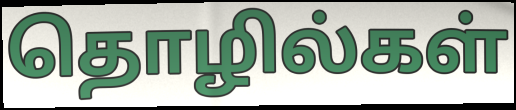
தொழில்கள்